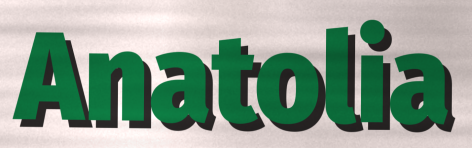
Anatolia